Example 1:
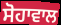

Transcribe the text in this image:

ਸੋਹਾਵਾਲ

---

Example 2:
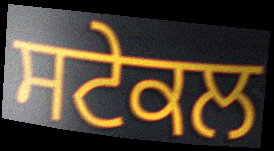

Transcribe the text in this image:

ਸਟੇਕਲ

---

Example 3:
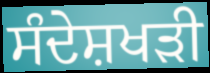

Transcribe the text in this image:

ਸੰਦੇਸ਼ਖੜੀ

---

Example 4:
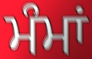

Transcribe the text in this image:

ਮੰਮਾਂ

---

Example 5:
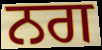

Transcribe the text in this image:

ਨਗ